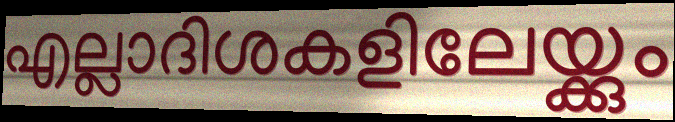
എല്ലാദിശകളിലേയ്ക്കും